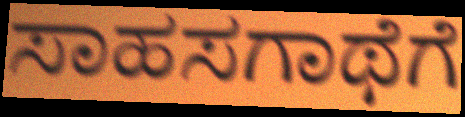
ಸಾಹಸಗಾಥೆಗೆ